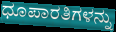
ಧೂಪಾರತಿಗಳನ್ನು